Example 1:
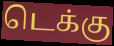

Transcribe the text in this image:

டெக்கு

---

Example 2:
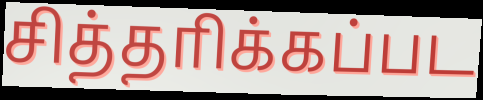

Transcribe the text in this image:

சித்தரிக்கப்பட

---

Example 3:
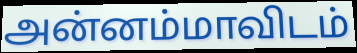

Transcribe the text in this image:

அன்னம்மாவிடம்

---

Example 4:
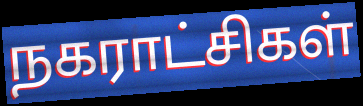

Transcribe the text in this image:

நகராட்சிகள்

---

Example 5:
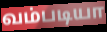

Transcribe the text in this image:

வம்படியா